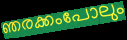
ഞരക്കംപോലും